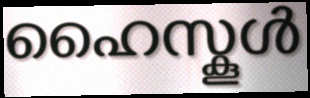
ഹൈസ്കൂൾ